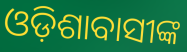
ଓଡ଼ିଶାବାସୀଙ୍କ